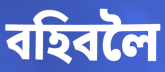
বহিবলৈ